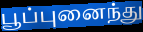
பூப்புனைந்து